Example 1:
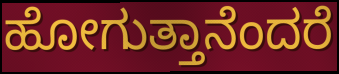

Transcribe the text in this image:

ಹೋಗುತ್ತಾನೆಂದರೆ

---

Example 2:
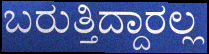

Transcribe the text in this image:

ಬರುತ್ತಿದ್ದಾರಲ್ಲ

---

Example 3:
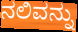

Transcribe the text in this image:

ನಲಿವನ್ನು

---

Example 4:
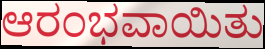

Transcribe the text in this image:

ಆರಂಭವಾಯಿತು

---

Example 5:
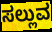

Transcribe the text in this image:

ಸಲ್ಲುವ